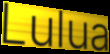
Lulua